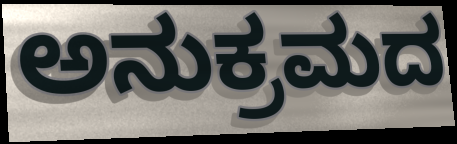
ಅನುಕ್ರಮದ